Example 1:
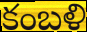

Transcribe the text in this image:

కంబళి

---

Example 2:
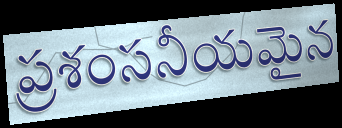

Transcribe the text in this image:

ప్రశంసనీయమైన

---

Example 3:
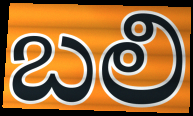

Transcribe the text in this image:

బలి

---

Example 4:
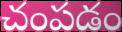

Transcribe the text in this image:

చంపడం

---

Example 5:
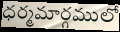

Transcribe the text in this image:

ధర్మమార్గములో